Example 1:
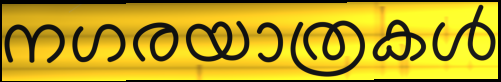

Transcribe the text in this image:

നഗരയാത്രകൾ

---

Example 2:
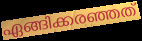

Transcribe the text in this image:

ഏങ്ങിക്കരഞ്ഞത്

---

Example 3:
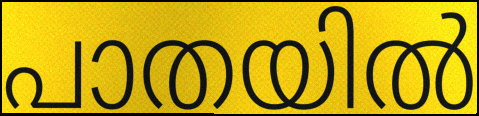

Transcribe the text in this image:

പാതയിൽ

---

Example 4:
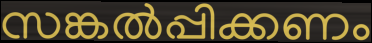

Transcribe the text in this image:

സങ്കൽപ്പിക്കണം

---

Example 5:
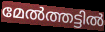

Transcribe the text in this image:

മേൽത്തട്ടിൽ